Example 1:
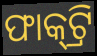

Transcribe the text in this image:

ଫାକ୍‍ଟ୍ରି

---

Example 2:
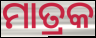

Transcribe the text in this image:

ମାତ୍ରକ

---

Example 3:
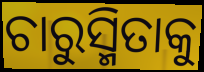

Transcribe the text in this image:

ଚାରୁସ୍ମିତାକୁ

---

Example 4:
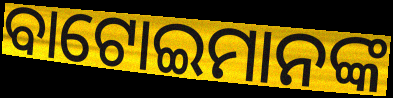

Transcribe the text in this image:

ବାଟୋଇମାନଙ୍କ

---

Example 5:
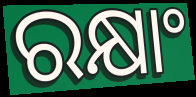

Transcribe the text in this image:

ରକ୍ଷାଂ